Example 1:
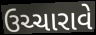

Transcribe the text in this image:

ઉચ્ચારાવે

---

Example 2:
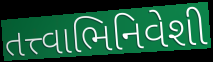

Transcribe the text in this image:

તત્ત્વાભિનિવેશી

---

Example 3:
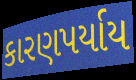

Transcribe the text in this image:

કારણપર્યાય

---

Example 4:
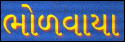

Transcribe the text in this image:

ભોળવાયા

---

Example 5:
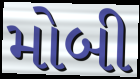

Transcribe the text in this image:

મોબી